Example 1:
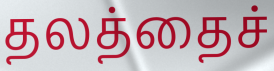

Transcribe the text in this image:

தலத்தைச்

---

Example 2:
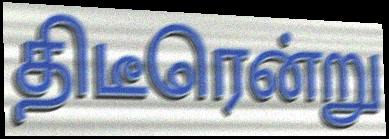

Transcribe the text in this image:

திடீரென்று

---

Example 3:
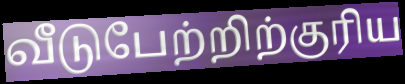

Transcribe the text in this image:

வீடுபேற்றிற்குரிய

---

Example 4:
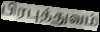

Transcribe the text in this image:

பிரபுத்துவம்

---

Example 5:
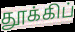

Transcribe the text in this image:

தூக்கிப்